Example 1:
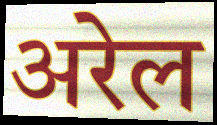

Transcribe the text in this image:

अरेल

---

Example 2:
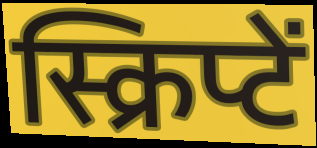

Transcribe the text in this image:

स्क्रिप्टें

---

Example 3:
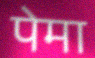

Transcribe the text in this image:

पेमा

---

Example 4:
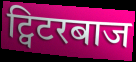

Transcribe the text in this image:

ट्विटरबाज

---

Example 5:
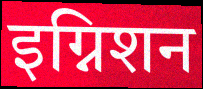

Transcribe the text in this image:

इग्निशन